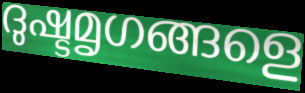
ദുഷ്ടമൃഗങ്ങളെ